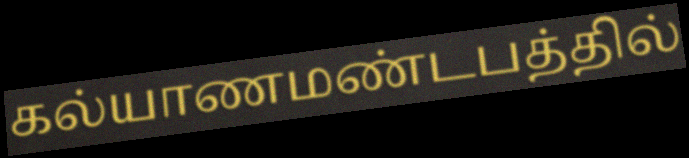
கல்யாணமண்டபத்தில்